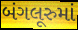
બંગલૂરુમાં